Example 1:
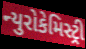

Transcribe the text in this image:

ન્યુરોકેમિસ્ટ્રી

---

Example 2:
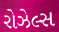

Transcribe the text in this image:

રોઝેલ્સ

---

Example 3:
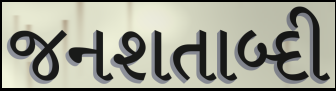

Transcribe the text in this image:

જનશતાબ્દી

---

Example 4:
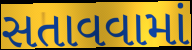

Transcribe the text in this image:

સતાવવામાં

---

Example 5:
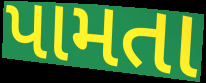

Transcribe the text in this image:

પામતા